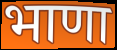
भाणा